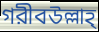
গরীবউল্লাহ্